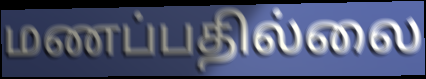
மணப்பதில்லை